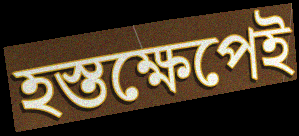
হস্তক্ষেপেই